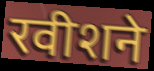
रवीशने